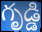
గృడ్డి